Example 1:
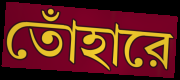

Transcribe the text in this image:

তোঁহারে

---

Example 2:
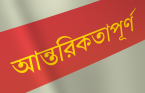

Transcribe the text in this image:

আন্তরিকতাপূর্ণ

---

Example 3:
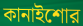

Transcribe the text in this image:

কানাইশোর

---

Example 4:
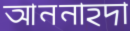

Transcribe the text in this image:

আননাহদা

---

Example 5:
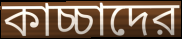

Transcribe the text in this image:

কাচ্চাদের